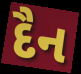
દૈન